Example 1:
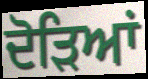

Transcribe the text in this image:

ਦੋੜਿਆਂ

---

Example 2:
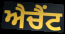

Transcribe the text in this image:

ਐਚੈਂਟ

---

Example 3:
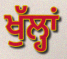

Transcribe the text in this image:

ਖੁੱਲ੍ਹਾਂ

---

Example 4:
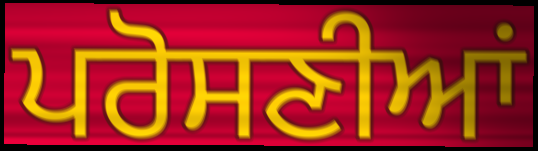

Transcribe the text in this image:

ਪਰੋਸਣੀਆਂ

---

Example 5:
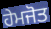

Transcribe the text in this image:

ਹੇਮਜੋਤ